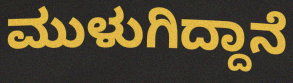
ಮುಳುಗಿದ್ದಾನೆ